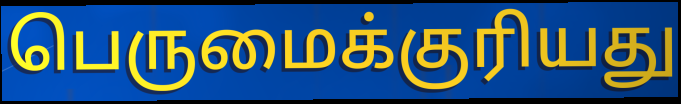
பெருமைக்குரியது